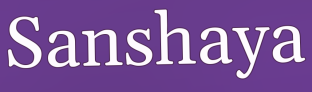
Sanshaya